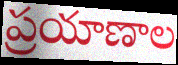
ప్రయాణాల